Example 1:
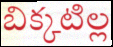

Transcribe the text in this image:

బిక్కటిల్ల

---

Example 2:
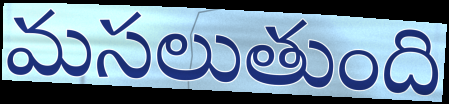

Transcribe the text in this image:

మసలుతుంది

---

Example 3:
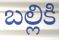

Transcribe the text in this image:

బల్లికి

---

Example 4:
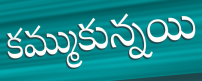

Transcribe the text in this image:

కమ్ముకున్నయి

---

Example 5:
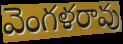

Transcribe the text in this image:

వెంగళరావు